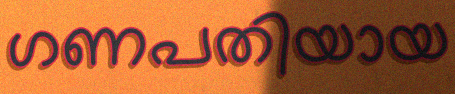
ഗണപതിയായ